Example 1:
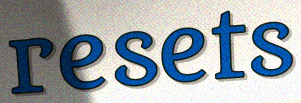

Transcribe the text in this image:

resets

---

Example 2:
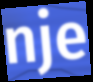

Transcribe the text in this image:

nje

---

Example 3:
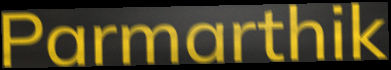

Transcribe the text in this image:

Parmarthik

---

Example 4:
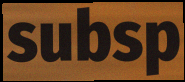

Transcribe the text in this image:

subsp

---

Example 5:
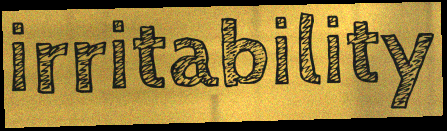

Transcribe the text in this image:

irritability